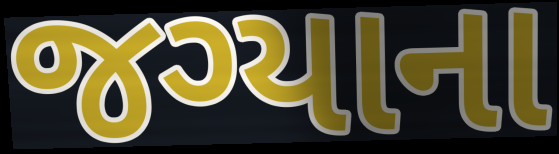
જગ્યાના